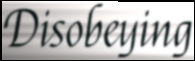
Disobeying